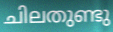
ചിലതുണ്ടു